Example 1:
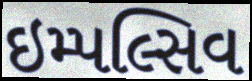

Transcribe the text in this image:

ઇમ્પલ્સિવ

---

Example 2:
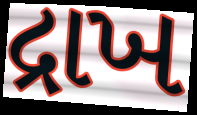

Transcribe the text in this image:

દ્રાખ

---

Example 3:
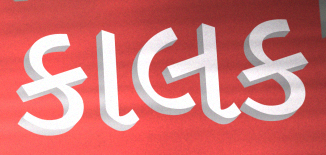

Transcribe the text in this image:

કાલક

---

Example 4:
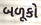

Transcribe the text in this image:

બળૂકો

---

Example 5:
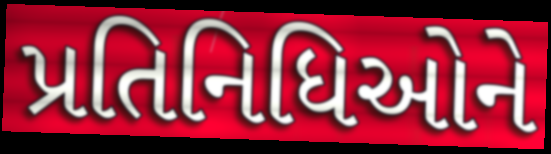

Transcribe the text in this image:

પ્રતિનિધિઓને